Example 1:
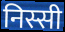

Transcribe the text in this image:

निस्सी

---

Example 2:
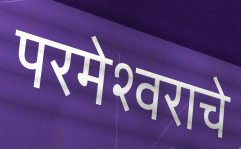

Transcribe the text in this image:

परमेश्वराचे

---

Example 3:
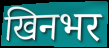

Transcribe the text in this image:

खिनभर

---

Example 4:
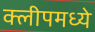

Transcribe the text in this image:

क्लीपमध्ये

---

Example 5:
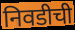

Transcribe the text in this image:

निवडीची